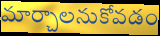
మార్చాలనుకోవడం